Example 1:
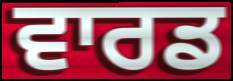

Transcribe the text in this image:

ਵਾਰਡ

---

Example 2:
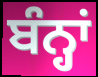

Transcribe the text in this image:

ਬੰਨ੍ਹਾਂ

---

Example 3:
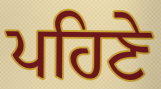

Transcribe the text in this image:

ਪਹਿਣੇ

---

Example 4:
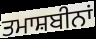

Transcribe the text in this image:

ਤਮਾਸ਼ਬੀਨਾਂ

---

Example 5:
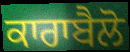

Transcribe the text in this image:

ਕਾਰਾਬੈਲੋ